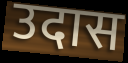
उदास